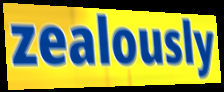
zealously